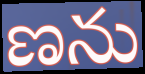
ణను